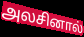
அலசினால்